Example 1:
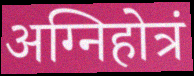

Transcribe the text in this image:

अग्निहोत्रं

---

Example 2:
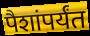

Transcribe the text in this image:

पैशांपर्यंत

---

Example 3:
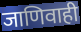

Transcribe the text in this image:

जाणिवाही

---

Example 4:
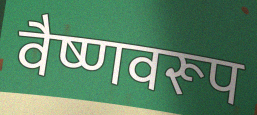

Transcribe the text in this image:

वैष्णवरूप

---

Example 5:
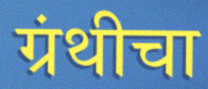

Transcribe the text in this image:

ग्रंथीचा